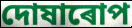
দোষাৰোপ